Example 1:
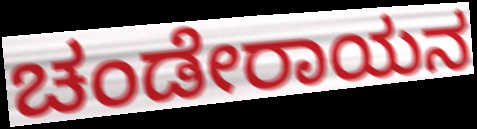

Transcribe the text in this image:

ಚಂಡೇರಾಯನ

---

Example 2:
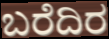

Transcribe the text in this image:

ಬರೆದಿರ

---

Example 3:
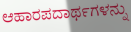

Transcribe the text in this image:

ಆಹಾರಪದಾರ್ಥಗಳನ್ನು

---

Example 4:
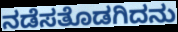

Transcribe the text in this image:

ನಡೆಸತೊಡಗಿದನು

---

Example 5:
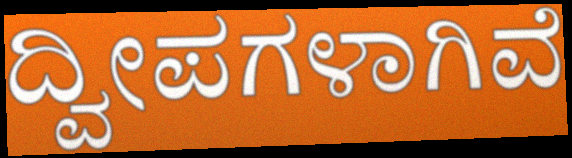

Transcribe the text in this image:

ದ್ವೀಪಗಳಾಗಿವೆ